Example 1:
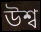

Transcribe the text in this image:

উশ্ব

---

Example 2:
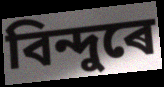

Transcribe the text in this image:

বিন্দুৰে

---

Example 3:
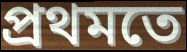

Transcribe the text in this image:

প্ৰথমতে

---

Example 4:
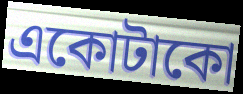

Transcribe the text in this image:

একোটাকো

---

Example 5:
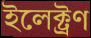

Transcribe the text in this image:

ইলেক্ট্ৰণ